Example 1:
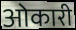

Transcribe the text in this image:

ओकारी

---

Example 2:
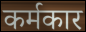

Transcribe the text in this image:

कर्मकार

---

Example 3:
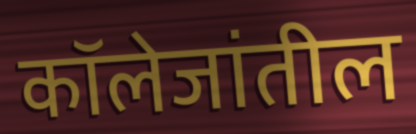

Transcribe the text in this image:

कॉलेजांतील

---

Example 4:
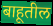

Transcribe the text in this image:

बाहूतील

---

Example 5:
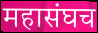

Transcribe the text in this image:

महासंघच